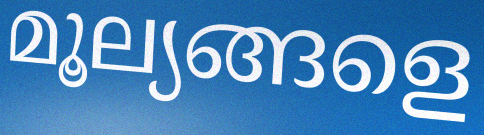
മൂല്യങ്ങളെ